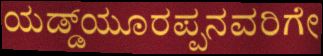
ಯಡ್ಡ್‌ಯೂರಪ್ಪನವರಿಗೇ